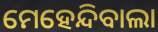
ମେହେନ୍ଦିବାଲା